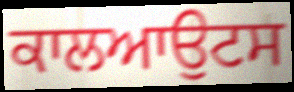
ਕਾਲਆਉਟਸ